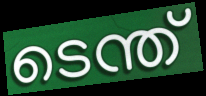
ടെന്ത്